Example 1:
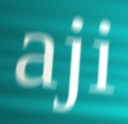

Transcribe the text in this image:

aji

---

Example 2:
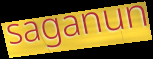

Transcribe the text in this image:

saganun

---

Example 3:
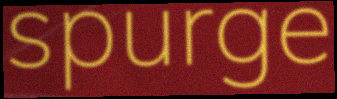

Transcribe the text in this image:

spurge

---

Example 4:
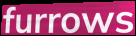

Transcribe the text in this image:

furrows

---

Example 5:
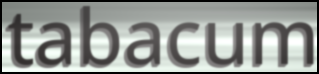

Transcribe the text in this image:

tabacum